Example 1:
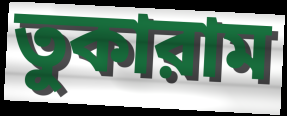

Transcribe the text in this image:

তুকারাম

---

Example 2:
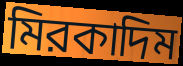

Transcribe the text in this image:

মিরকাদিম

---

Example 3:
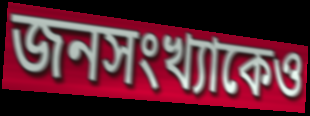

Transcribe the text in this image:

জনসংখ্যাকেও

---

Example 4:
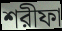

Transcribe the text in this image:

শরীফা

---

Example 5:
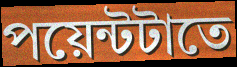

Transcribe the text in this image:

পয়েন্টটাতে